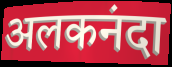
अलकनंदा